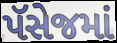
પૅસેજમાં